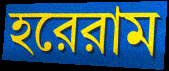
হরেরাম